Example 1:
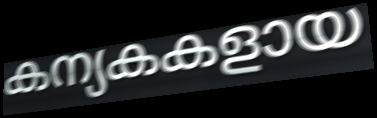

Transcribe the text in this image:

കന്യകകളായ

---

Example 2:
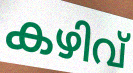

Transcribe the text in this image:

കഴിവ്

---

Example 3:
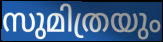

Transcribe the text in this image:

സുമിത്രയും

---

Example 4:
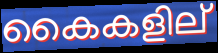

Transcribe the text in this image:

കൈകളില്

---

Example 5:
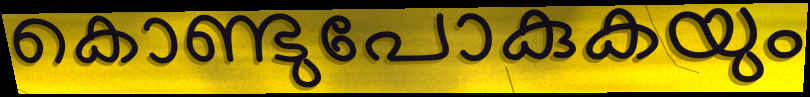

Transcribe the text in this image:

കൊണ്ടുപോകുകയും